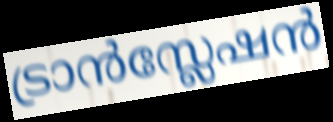
ട്രാൻസ്ലേഷൻ